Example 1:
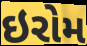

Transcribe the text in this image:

ઇરોમ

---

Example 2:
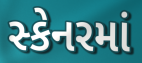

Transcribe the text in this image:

સ્કેનરમાં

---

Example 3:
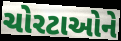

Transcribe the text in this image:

ચોરટાઓને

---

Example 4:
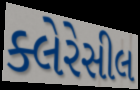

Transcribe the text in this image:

ક્લેરેસીલ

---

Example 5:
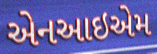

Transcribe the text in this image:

એનઆઇએમ